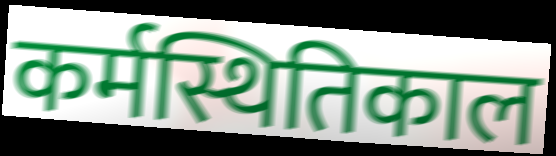
कर्मस्थितिकाल